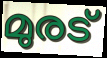
മുരട്